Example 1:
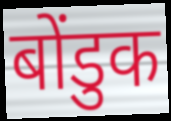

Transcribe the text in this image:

बोंडुक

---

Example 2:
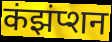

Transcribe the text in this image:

कंझंप्शन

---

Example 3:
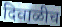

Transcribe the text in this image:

दिवाळीच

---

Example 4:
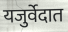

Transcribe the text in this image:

यजुर्वेदात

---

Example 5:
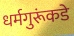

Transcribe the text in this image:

धर्मगुरूंकडे